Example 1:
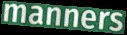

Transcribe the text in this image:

manners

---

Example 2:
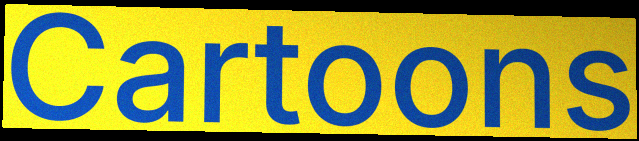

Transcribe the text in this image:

Cartoons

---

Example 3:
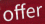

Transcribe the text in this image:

offer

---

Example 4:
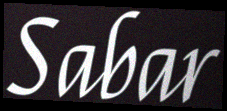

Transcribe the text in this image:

Sabar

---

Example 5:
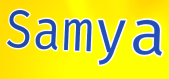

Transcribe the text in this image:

Samya